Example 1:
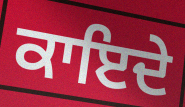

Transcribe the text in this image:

ਕਾਇਦੇ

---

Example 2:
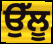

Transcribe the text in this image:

ਉੱਲੂ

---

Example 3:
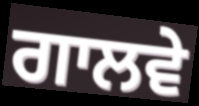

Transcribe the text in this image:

ਗਾਲਵੇ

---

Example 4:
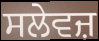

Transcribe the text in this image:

ਸਲੇਵਜ਼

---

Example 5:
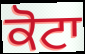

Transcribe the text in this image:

ਕੋਟਾ